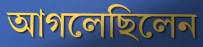
আগলেছিলেন